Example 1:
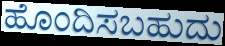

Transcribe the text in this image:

ಹೊಂದಿಸಬಹುದು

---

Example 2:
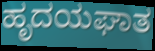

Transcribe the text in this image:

ಹೃದಯಘಾತ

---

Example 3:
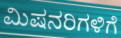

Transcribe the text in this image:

ಮಿಷನರಿಗಳಿಗೆ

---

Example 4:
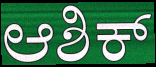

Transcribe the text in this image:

ಆಶಿಕ್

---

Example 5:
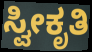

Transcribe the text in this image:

ಸ್ವೀಕೃತಿ